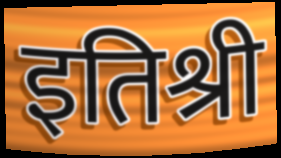
इतिश्री